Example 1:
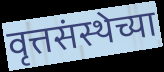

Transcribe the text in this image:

वृत्तसंस्थेच्या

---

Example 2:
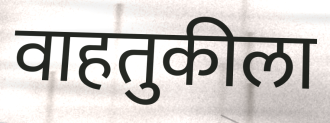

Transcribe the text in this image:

वाहतुकीला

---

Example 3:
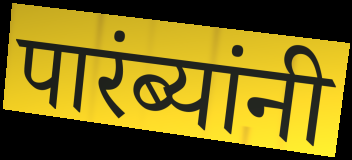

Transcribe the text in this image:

पारंब्यांनी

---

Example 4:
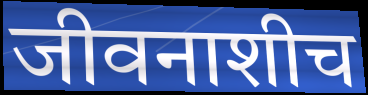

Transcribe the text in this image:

जीवनाशीच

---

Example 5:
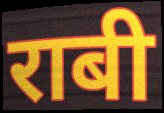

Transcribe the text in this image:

राबी